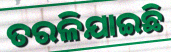
ତରଳିଯାଇଛି